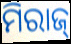
ମିରାଜ୍